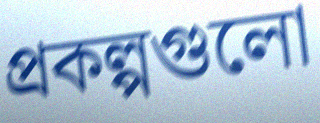
প্রকল্পগুলো